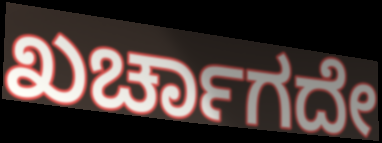
ಖರ್ಚಾಗದೇ